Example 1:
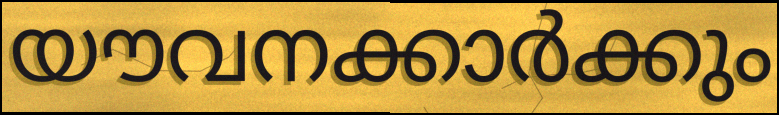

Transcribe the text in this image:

യൗവനക്കാർക്കും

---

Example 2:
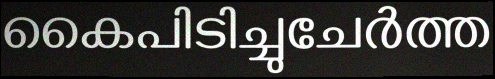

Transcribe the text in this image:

കൈപിടിച്ചുചേർത്ത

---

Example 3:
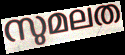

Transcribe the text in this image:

സുമലത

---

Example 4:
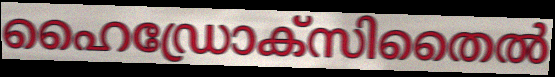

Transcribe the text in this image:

ഹൈഡ്രോക്സിതൈൽ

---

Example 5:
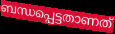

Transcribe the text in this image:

ബന്ധപ്പെട്ടതാണത്